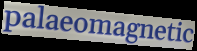
palaeomagnetic